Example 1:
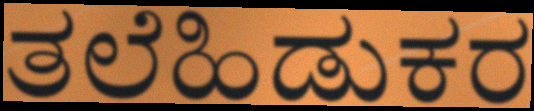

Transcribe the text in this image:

ತಲೆಹಿಡುಕರ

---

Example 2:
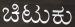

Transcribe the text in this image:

ಚಿಟುಕು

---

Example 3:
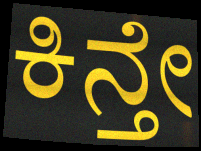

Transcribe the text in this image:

ಕಿನ್ತೇ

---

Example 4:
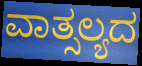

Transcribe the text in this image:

ವಾತ್ಸಲ್ಯದ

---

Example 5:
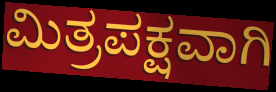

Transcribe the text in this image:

ಮಿತ್ರಪಕ್ಷವಾಗಿ